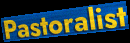
Pastoralist